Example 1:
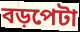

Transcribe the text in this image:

বড়পেটা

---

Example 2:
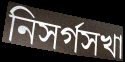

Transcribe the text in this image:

নিসর্গসখা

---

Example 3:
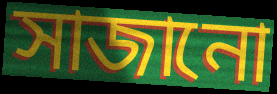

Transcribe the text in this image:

সাজানো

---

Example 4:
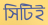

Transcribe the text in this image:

সিটিই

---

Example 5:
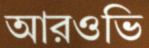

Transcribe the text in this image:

আরওভি